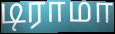
டிராமா